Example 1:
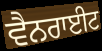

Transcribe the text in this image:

ਵੈਨਰਾਈਟ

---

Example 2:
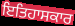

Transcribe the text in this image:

ਇਤਿਹਾਸਕਾਰ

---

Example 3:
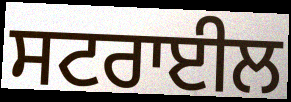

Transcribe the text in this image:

ਸਟਰਾਈਲ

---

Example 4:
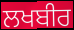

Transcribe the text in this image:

ਲਖਬੀਰ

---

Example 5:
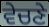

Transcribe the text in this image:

ਵੇਚਣੇ